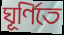
ঘূর্ণিতে